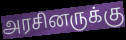
அரசினருக்கு